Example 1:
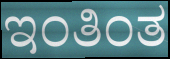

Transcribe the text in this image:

ಇಂತಿಂತ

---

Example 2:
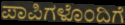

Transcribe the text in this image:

ಪಾಪಿಗಳೊಂದಿಗೆ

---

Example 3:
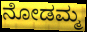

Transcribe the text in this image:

ನೋಡಮ್ಮ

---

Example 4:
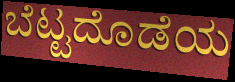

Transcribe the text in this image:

ಬೆಟ್ಟದೊಡೆಯ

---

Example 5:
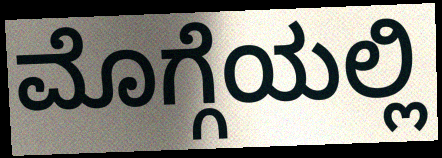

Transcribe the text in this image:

ಮೊಗ್ಗೆಯಲ್ಲಿ